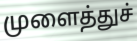
முளைத்துச்